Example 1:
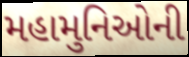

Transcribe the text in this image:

મહામુનિઓની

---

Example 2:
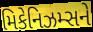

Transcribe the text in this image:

મિકેનિઝમ્સને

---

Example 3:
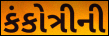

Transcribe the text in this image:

કંકોત્રીની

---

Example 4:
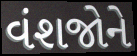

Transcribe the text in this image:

વંશજોને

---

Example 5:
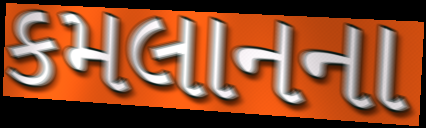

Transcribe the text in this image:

કમલાનના